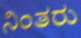
ನಿಂತರು